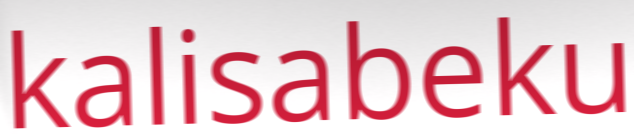
kalisabeku